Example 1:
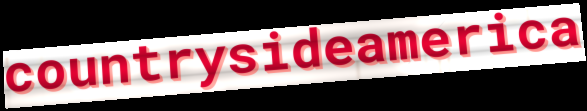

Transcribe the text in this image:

countrysideamerica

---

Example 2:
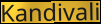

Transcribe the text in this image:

Kandivali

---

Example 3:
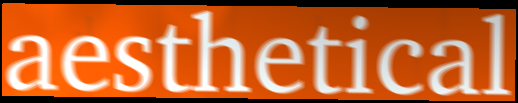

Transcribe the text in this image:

aesthetical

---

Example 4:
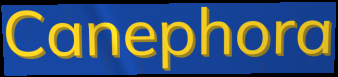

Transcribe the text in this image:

Canephora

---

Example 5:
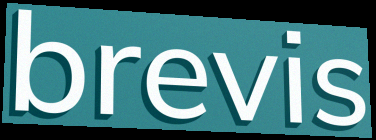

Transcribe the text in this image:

brevis